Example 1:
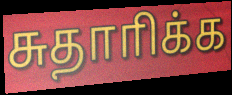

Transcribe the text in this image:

சுதாரிக்க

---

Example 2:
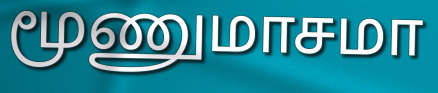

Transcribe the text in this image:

மூணுமாசமா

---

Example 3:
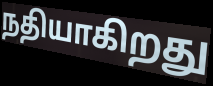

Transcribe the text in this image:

நதியாகிறது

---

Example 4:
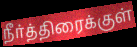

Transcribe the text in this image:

நீர்த்திரைக்குள்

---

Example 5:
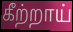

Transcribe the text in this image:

கீற்றாய்